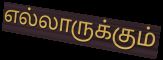
எல்லாருக்கும்